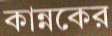
কান্নকের